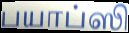
பயாப்ஸி